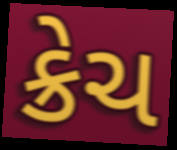
ક્રેચ